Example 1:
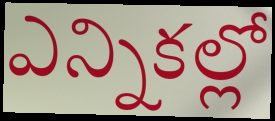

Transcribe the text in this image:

ఎన్నికల్లో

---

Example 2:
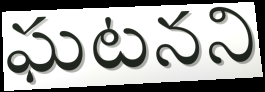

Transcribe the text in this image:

ఘటనని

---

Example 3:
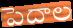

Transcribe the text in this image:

పెదాల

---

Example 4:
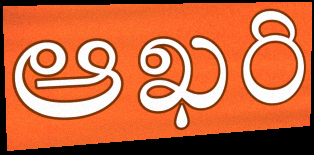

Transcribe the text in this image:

ఆఖరి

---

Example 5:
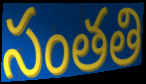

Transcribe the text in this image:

సంతతి